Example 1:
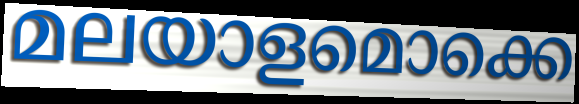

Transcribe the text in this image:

മലയാളമൊക്കെ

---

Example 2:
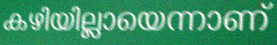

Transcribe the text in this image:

കഴിയില്ലായെന്നാണ്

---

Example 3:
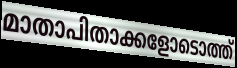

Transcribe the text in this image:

മാതാപിതാക്കളോടൊത്ത്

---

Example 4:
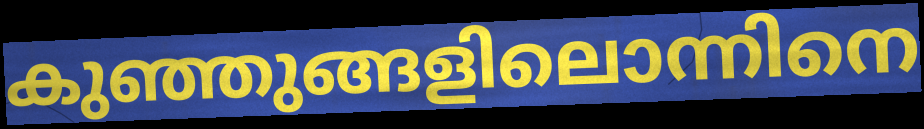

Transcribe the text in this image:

കുഞ്ഞുങ്ങളിലൊന്നിനെ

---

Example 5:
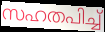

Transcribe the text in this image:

സഹതപിച്ച്